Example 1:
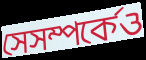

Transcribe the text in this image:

সেসম্পর্কেও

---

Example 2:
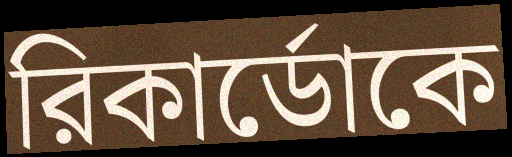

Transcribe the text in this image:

রিকার্ডোকে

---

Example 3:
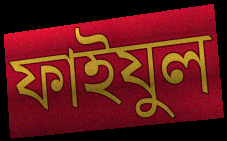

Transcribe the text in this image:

ফাইযুল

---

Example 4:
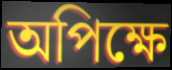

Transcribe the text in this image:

অপিক্ষে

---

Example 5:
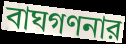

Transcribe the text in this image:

বাঘগণনার